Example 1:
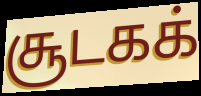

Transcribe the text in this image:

சூடகக்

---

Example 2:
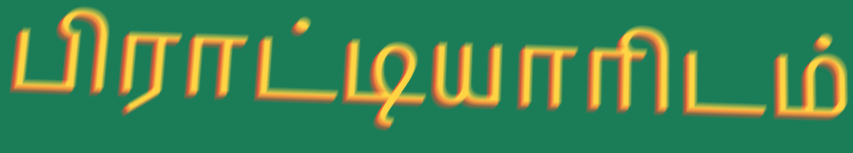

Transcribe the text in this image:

பிராட்டியாரிடம்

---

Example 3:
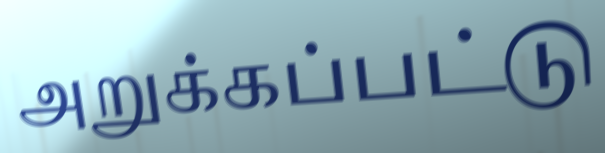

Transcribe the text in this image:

அறுக்கப்பட்டு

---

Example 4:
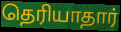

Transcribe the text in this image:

தெரியாதார்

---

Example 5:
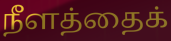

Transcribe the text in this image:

நீளத்தைக்